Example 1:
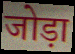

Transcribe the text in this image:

जोड़ा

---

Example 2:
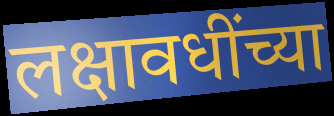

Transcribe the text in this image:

लक्षावधींच्या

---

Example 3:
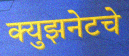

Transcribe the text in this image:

क्युझनेटचे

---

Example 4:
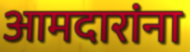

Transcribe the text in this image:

आमदारांना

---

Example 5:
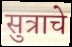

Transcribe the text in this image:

सुत्राचे